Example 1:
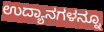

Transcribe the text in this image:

ಉದ್ಯಾನಗಳನ್ನೂ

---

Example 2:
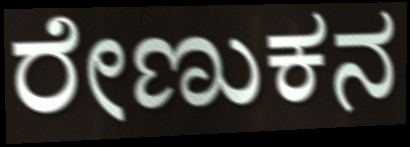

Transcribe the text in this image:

ರೇಣುಕನ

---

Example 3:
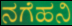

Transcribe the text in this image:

ನಗೆಹನಿ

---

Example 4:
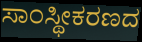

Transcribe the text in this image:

ಸಾಂಸ್ಥೀಕರಣದ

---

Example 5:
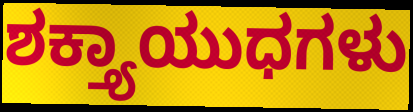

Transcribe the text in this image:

ಶಕ್ತ್ಯಾಯುಧಗಳು